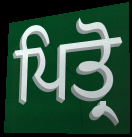
ਪਿਤ੍ਰੋ